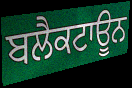
ਬਲੈਕਟਾਊਨ